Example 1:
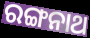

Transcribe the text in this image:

ରଙ୍ଗନାଥ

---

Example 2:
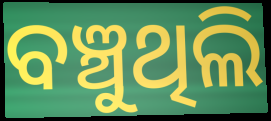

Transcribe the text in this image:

ବଞ୍ଚୁଥିଲି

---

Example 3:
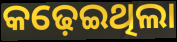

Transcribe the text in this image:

କଢ଼େଇଥିଲା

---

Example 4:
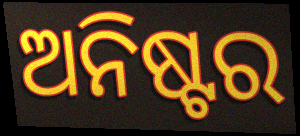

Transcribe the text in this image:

ଅନିଷ୍ଟର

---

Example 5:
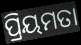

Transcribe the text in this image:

ପ୍ରିୟମତା